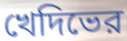
খেদিভের